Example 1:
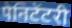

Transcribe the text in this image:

पेनिटेंटरी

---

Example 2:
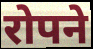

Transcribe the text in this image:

रोपने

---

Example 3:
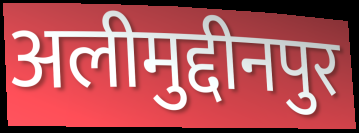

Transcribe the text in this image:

अलीमुद्दीनपुर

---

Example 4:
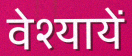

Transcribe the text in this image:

वेश्यायें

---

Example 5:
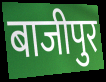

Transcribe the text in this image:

बाजीपुर